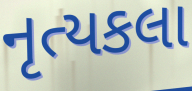
નૃત્યકલા